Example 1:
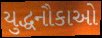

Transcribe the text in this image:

યુદ્ધનૌકાઓ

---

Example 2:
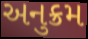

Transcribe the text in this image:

અનુક્રમ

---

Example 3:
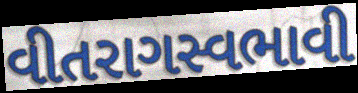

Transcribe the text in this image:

વીતરાગસ્વભાવી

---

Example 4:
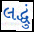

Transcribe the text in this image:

લદ્ધું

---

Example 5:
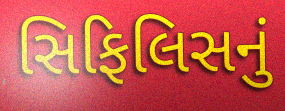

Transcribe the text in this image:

સિફિલિસનું